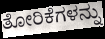
ತೋರಿಕೆಗಳನ್ನು